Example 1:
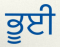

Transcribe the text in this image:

ਭੂਈ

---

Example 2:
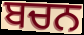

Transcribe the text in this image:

ਬਚਨ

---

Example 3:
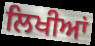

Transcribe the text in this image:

ਲਿਖੀਆਂ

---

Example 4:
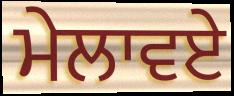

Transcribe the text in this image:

ਮੇਲਾਵਏ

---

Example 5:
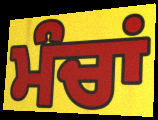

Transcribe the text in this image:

ਮੰਚਾਂ